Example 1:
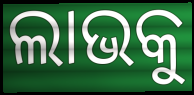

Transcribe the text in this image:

ଲାଭକୁ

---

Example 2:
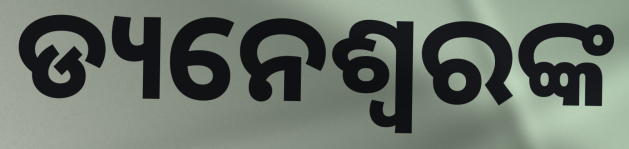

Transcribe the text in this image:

ଡ୍ୟନେଶ୍ୱରଙ୍କ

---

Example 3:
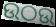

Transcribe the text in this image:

ଉଠଉ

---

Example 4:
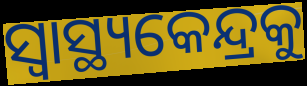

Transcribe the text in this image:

ସ୍ୱାସ୍ଥ୍ୟକେନ୍ଦ୍ରକୁ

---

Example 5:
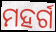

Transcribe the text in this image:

ମହର୍ଗ